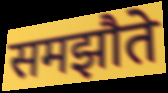
समझौते